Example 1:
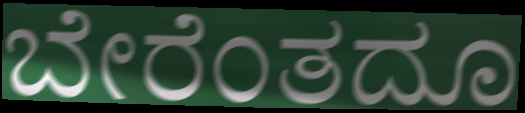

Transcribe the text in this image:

ಬೇರೆಂತದೂ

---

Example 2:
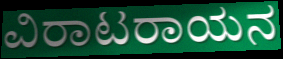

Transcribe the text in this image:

ವಿರಾಟರಾಯನ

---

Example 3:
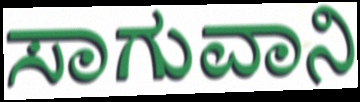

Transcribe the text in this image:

ಸಾಗುವಾನಿ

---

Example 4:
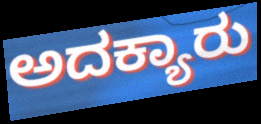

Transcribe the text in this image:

ಅದಕ್ಯಾರು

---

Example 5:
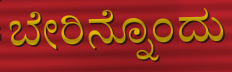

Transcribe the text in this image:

ಬೇರಿನ್ನೊಂದು